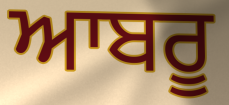
ਆਬਰੂ